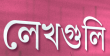
লেখগুলি